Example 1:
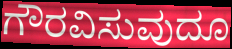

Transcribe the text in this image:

ಗೌರವಿಸುವುದೂ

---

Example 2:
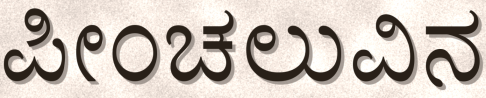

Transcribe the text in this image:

ಪೀಂಚಲುವಿನ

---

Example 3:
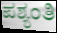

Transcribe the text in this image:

ಪಶ್ಯಂತಿ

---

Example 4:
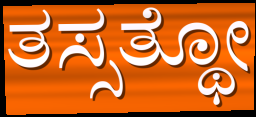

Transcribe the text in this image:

ತಸ್ಸತ್ಥೋ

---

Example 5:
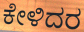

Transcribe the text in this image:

ಕೇಳಿದರ